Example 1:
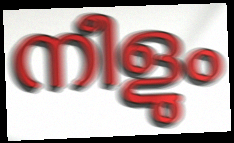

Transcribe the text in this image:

നീളും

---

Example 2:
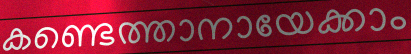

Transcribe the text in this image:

കണ്ടെത്താനായേക്കാം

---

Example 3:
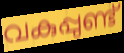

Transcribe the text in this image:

വകുപ്പുണ്ട്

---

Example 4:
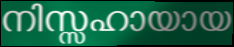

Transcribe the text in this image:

നിസ്സഹായായ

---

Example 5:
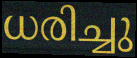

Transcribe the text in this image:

ധരിച്ചു